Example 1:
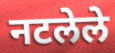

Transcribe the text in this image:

नटलेले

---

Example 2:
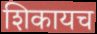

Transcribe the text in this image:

शिकायच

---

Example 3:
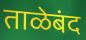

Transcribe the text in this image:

ताळेबंद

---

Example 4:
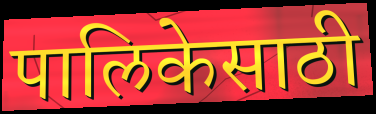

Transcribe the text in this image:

पालिकेसाठी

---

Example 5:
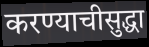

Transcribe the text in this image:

करण्याचीसुद्धा